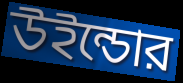
উইন্ডোর